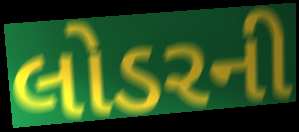
લોડરની